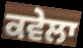
ਕਵੇਲਾ